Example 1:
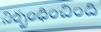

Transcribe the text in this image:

నిర్బంధించింది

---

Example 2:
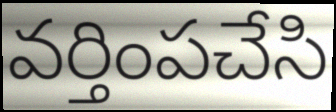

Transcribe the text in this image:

వర్తింపచేసి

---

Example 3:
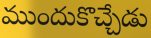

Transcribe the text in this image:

ముందుకొచ్చేడు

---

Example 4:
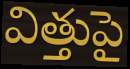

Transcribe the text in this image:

విత్తుపై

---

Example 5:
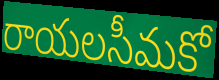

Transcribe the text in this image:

రాయలసీమకో